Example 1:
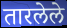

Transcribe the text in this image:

तारलेले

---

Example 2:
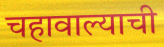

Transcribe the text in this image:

चहावाल्याची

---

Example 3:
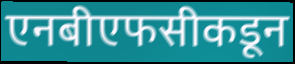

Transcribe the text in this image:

एनबीएफसीकडून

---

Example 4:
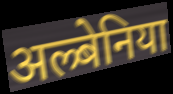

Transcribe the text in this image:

अल्बेनिया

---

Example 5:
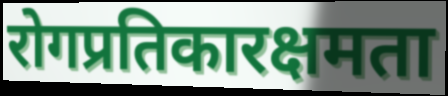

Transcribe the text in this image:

रोगप्रतिकारक्षमता